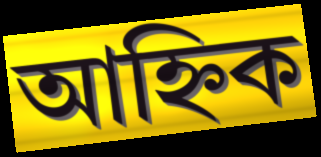
আহ্নিক